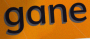
gane